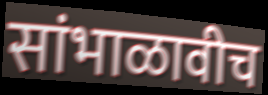
सांभाळावीच